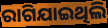
ରାଗିଯାଇଥିଲି